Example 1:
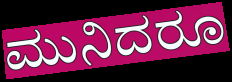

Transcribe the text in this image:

ಮುನಿದರೂ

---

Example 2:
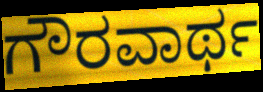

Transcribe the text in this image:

ಗೌರವಾರ್ಥ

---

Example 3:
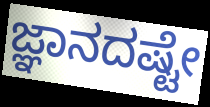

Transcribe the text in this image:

ಜ್ಞಾನದಷ್ಟೇ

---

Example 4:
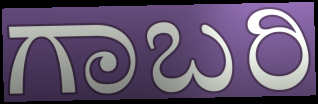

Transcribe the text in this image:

ಗಾಬರಿ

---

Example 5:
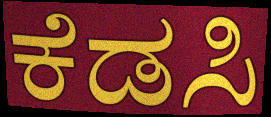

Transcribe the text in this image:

ಕೆಡಸಿ